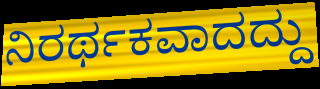
ನಿರರ್ಥಕವಾದದ್ದು